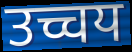
उच्चय